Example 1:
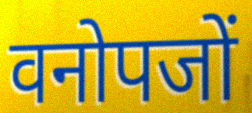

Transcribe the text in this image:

वनोपजों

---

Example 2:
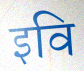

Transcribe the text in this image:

इवि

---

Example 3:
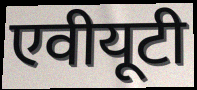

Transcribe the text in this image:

एवीयूटी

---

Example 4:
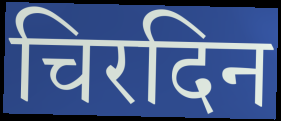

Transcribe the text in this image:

चिरदिन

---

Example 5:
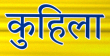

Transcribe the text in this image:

कुहिला